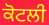
ਕੋਟਲੀ